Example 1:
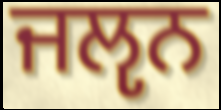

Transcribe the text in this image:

ਜਲੵਨ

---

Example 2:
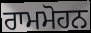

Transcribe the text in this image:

ਰਾਮਮੋਹਨ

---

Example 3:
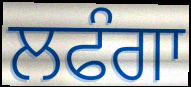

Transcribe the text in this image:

ਲਫੰਗਾ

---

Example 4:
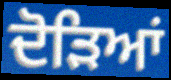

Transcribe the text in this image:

ਦੋੜਿਆਂ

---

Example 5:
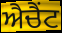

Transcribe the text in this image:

ਐਚੈਂਟ